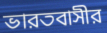
ভারতবাসীর